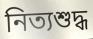
নিত্যশুদ্ধ